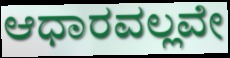
ಆಧಾರವಲ್ಲವೇ